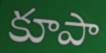
కూపా